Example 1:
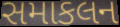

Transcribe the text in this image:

સમાકલન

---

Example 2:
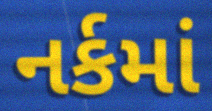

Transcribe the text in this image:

નર્કમાં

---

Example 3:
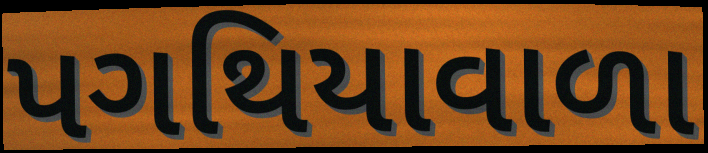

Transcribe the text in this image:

પગથિયાવાળા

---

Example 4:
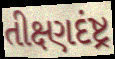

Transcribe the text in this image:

તીક્ષ્ણદંષ્ટ્ર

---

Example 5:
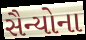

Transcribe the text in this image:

સૈન્યોના